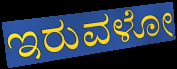
ಇರುವಳೋ